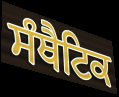
ਸੰਥੈਟਿਕ